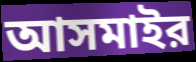
আসমাইর